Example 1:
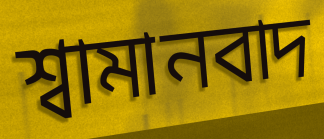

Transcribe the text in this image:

শ্বামানবাদ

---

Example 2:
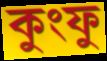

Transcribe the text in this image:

কুংফু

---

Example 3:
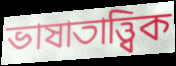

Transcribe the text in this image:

ভাষাতাত্ত্বিক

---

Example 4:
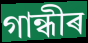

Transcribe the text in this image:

গান্ধীৰ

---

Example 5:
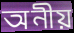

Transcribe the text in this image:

অনীয়